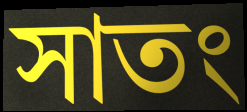
সাতং